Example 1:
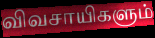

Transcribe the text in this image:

விவசாயிகளும்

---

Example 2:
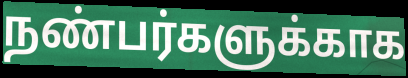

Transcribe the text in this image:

நண்பர்களுக்காக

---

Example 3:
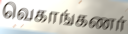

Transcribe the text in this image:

வெகாங்கணர்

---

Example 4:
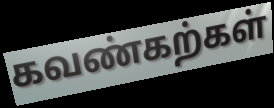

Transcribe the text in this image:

கவண்கற்கள்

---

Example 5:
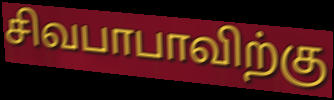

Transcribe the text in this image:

சிவபாபாவிற்கு